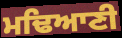
ਮਢਿਆਣੀ